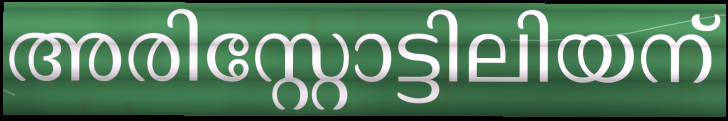
അരിസ്റ്റോട്ടിലിയന്